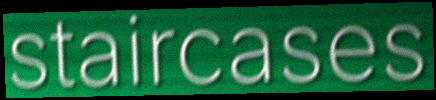
staircases